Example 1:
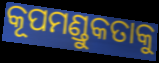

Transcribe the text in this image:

କୂପମଣ୍ଡୁକତାକୁ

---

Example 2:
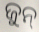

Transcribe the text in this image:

ଜୁନ୍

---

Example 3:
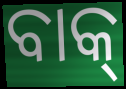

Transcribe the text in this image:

ବାକ୍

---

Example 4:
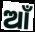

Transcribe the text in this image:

ଆଁ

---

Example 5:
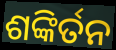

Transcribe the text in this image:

ଶଙ୍କିର୍ତନ